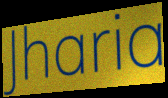
Jharia